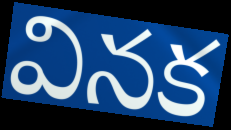
వినక